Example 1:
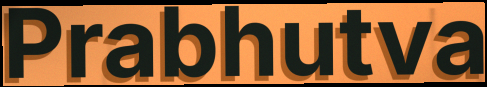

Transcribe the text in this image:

Prabhutva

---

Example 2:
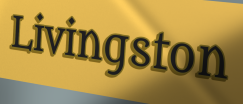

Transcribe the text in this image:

Livingston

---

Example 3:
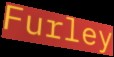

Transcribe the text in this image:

Furley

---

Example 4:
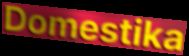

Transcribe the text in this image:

Domestika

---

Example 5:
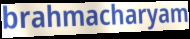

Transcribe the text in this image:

brahmacharyam